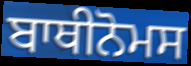
ਬਾਥੀਨੋਮਸ